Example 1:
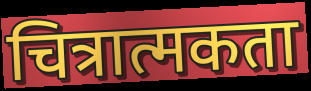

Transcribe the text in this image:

चित्रात्मकता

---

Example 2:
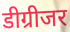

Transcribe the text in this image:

डीग्रीजर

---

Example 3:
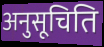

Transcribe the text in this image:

अनुसूचिति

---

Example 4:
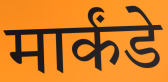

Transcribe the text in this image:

मार्कंडे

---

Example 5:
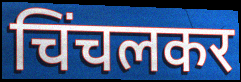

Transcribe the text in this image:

चिंचलकर